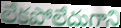
లేకపోలేదుగాని